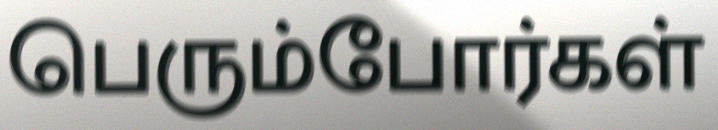
பெரும்போர்கள்